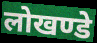
लोखण्डे